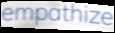
empathize